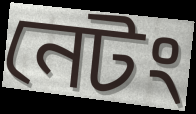
নেটং